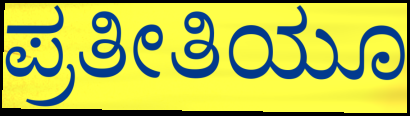
ಪ್ರತೀತಿಯೂ